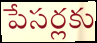
పేసర్లకు